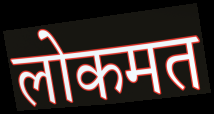
लोकमत